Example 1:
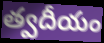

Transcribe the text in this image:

త్వదీయం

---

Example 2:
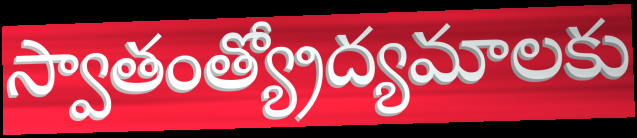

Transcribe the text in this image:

స్వాతంత్య్రోద్యమాలకు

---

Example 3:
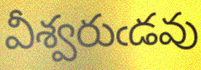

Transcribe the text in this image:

వీశ్వరుఁడవు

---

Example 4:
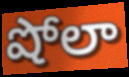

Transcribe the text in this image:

షోలా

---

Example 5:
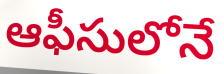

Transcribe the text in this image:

ఆఫీసులోనే